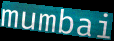
mumbai